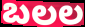
బలల